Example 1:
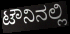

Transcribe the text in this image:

ಟೌನಿನಲ್ಲಿ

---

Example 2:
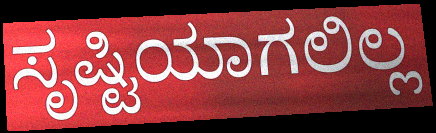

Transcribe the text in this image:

ಸೃಷ್ಟಿಯಾಗಲಿಲ್ಲ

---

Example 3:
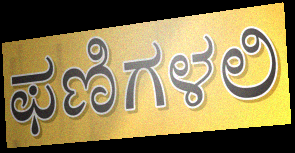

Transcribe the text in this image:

ಫಣಿಗಳಲಿ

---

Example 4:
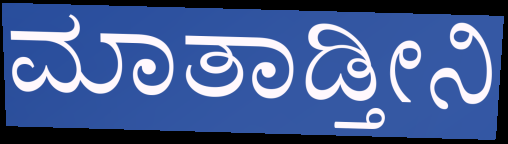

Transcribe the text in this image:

ಮಾತಾಡ್ತೀನಿ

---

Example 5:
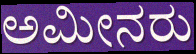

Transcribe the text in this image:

ಅಮೀನರು